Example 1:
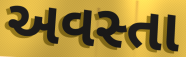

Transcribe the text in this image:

અવસ્તા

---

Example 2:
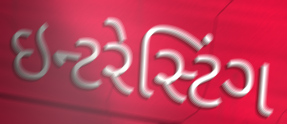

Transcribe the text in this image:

ઇન્ટરેસ્ટિંગ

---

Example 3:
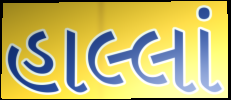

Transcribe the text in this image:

હાલ્લાં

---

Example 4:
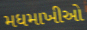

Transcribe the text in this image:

મધમાખીઓ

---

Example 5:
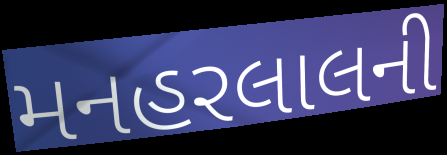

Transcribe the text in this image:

મનહરલાલની